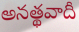
అనత్థవాదీ